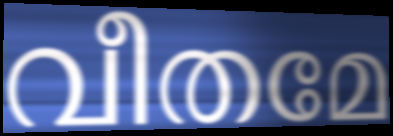
വീതമേ